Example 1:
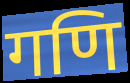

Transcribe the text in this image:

गणि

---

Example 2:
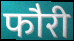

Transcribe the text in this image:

फौरी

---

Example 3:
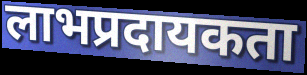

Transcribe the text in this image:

लाभप्रदायकता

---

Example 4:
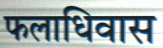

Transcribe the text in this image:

फलाधिवास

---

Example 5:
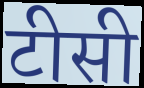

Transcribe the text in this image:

टीसी